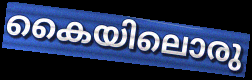
കൈയിലൊരു